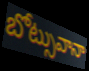
బోట్సువానా